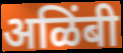
अळिंबी